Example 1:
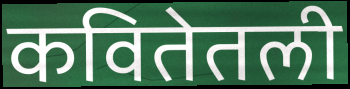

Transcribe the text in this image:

कवितेतली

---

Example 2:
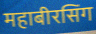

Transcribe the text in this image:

महाबीरसिंग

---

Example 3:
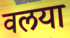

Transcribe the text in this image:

वलया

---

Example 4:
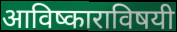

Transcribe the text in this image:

आविष्काराविषयी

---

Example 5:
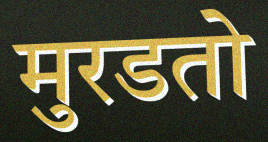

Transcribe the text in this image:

मुरडतो